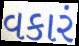
વકારં